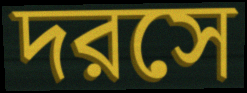
দরসে